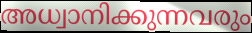
അധ്വാനിക്കുന്നവരും